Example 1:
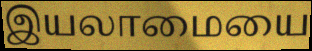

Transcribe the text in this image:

இயலாமையை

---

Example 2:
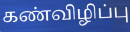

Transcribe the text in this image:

கண்விழிப்பு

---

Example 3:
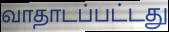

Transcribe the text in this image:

வாதாடப்பட்டது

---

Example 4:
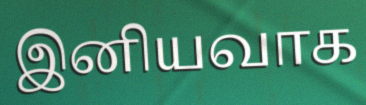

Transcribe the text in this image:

இனியவாக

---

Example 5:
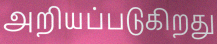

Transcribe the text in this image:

அறியப்படுகிறது